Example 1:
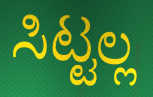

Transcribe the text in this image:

ಸಿಟ್ಟಲ್ಲ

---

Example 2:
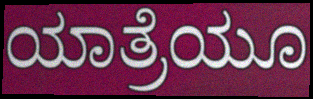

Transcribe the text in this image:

ಯಾತ್ರೆಯೂ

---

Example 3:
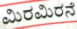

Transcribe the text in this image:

ಮಿರಮಿರನೆ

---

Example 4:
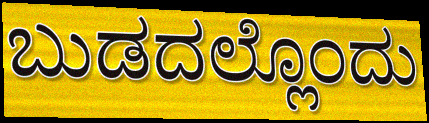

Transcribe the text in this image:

ಬುಡದಲ್ಲೊಂದು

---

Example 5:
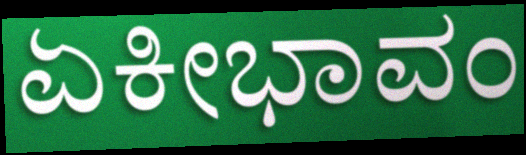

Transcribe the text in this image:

ಏಕೀಭಾವಂ